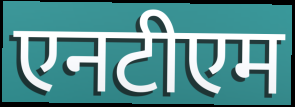
एनटीएम